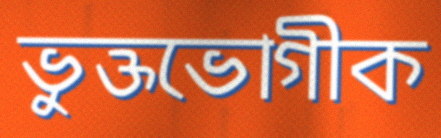
ভুক্তভোগীক